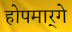
होपमार्गे